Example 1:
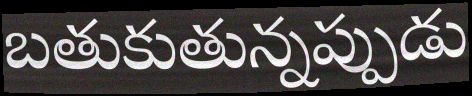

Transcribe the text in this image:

బతుకుతున్నప్పుడు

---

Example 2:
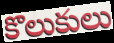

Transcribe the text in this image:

కొలుకులు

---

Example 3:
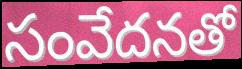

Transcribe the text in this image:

సంవేదనతో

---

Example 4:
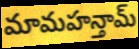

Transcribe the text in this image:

మామహన్తామ్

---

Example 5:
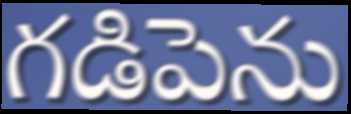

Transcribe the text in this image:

గడిపెను